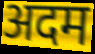
अदम